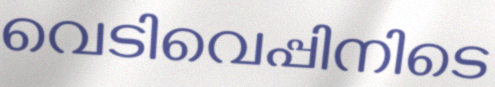
വെടിവെപ്പിനിടെ